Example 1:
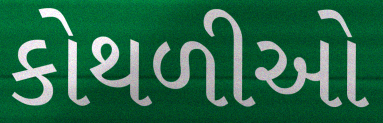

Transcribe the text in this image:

કોથળીઓ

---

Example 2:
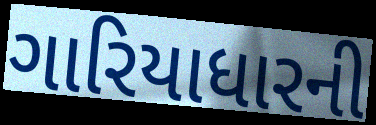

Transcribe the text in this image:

ગારિયાધારની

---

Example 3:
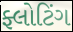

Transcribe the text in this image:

ફ્લોટિંગ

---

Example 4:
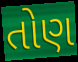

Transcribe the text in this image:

તોણ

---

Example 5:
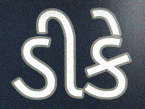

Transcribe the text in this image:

ડીકે